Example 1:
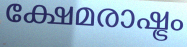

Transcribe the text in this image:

ക്ഷേമരാഷ്ട്രം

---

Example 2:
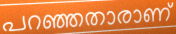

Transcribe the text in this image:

പറഞ്ഞതാരാണ്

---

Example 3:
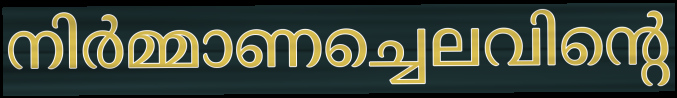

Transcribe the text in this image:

നിർമ്മാണച്ചെലവിന്റെ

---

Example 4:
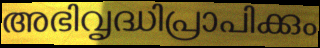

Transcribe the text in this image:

അഭിവൃദ്ധിപ്രാപിക്കും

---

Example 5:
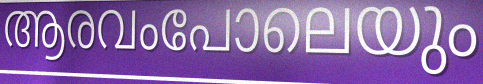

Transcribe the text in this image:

ആരവംപോലെയും